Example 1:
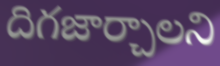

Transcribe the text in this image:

దిగజార్చాలని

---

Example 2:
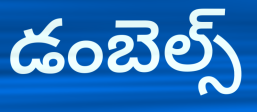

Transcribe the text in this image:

డంబెల్స్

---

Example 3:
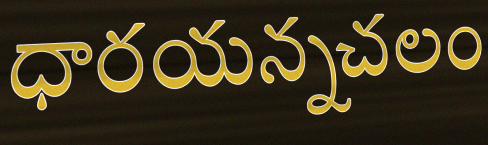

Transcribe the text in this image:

ధారయన్నచలం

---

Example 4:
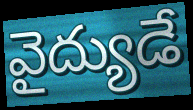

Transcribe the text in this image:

వైద్యుడే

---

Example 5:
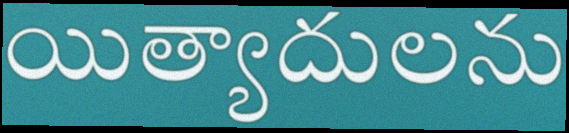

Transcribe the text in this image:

యిత్యాదులను